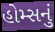
હોમ્સનું